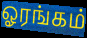
ஓரங்கம்